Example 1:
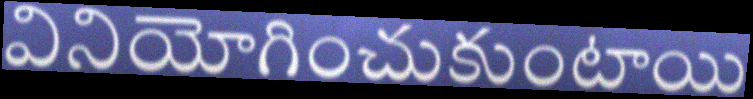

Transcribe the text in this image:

వినియోగించుకుంటాయి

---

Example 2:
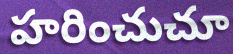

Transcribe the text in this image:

హరించుచూ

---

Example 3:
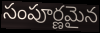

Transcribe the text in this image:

సంపూర్ణమైన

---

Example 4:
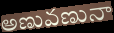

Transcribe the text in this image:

అణువణునా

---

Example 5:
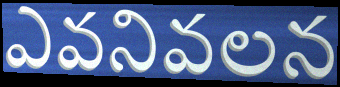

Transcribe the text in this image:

ఎవనివలన